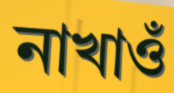
নাখাওঁ